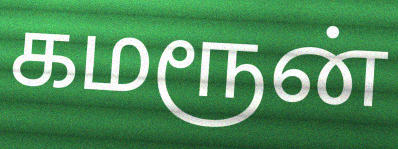
கமரூன்